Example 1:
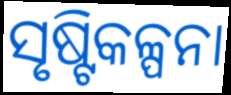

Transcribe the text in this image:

ସୃଷ୍ଟିକଳ୍ପନା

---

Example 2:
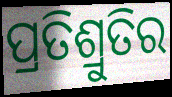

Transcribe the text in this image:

ପ୍ରତିଶ୍ରୁତିର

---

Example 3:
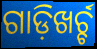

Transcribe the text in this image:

ଗାଡ଼ିଖର୍ଚ୍ଚ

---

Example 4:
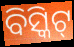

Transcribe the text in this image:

ବିସ୍କିଟ୍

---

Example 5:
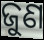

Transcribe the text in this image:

ଜୁଣ